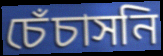
চেঁচাসনি